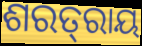
ଶରତ୍‌ରାୟ